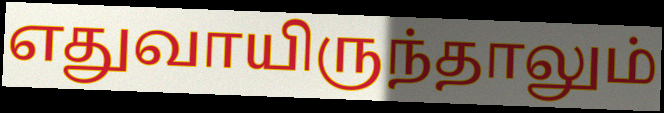
எதுவாயிருந்தாலும்